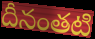
దీనంతటి